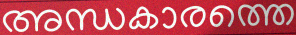
അന്ധകാരത്തെ